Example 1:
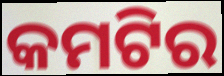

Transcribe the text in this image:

କମଟିର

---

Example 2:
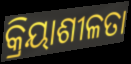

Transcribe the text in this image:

କ୍ରିୟାଶୀଳତା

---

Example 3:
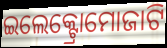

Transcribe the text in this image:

ଇଲେକ୍ଟ୍ରୋମୋଜାଟି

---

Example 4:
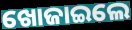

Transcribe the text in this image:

ଖୋଜାଇଲେ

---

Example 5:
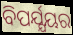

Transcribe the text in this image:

ବିପର୍ଯ୍ଯୟର